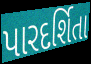
પારદર્શિતા